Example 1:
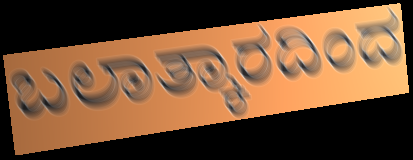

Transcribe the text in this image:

ಬಲಾತ್ಕಾರದಿಂದ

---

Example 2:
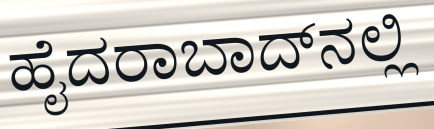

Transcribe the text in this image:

ಹೈದರಾಬಾದ್‌ನಲ್ಲಿ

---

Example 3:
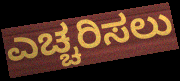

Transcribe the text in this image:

ಎಚ್ಚರಿಸಲು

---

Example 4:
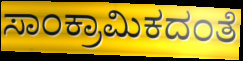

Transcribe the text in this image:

ಸಾಂಕ್ರಾಮಿಕದಂತೆ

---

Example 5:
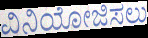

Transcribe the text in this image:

ವಿನಿಯೋಜಿಸಲು